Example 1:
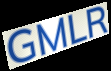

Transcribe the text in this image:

GMLR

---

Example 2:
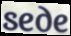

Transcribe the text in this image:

sede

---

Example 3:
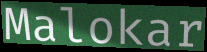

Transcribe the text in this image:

Malokar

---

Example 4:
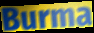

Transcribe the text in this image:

Burma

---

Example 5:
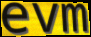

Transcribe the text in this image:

evm